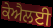
ਕੇਐਲਈ